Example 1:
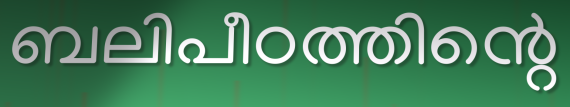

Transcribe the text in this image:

ബലിപീഠത്തിന്റെ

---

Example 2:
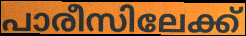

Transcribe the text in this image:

പാരീസിലേക്ക്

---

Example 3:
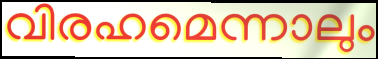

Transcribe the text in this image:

വിരഹമെന്നാലും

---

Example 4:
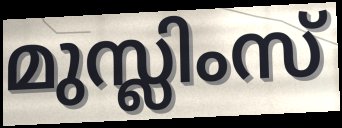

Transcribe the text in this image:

മുസ്ലിംസ്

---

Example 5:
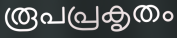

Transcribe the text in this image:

രൂപപ്രകൃതം